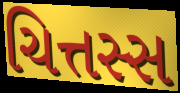
ચિત્તસ્સ